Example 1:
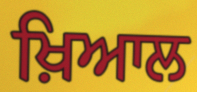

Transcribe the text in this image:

ਖ਼ਿਆਲ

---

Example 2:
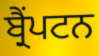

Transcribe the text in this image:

ਬ੍ਰੈਂਪਟਨ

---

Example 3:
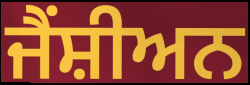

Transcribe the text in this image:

ਜੈਂਸ਼ੀਅਨ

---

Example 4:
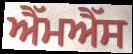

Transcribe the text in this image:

ਐੱਮਐੱਸ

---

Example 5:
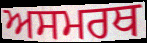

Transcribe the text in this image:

ਅਸਮਰਥ